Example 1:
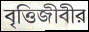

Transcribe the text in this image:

বৃত্তিজীবীর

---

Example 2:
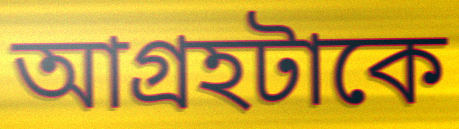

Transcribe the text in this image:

আগ্রহটাকে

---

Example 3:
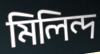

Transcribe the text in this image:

মিলিন্দ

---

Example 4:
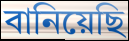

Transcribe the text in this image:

বানিয়েছি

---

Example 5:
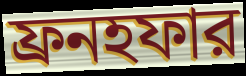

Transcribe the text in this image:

ফ্রনহফার